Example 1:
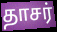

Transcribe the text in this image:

தாசர்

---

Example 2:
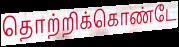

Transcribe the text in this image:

தொற்றிக்கொண்டே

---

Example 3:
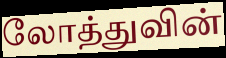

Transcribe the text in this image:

லோத்துவின்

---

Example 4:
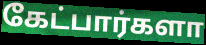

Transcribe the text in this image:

கேட்பார்களா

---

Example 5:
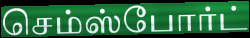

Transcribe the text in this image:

செம்ஸ்போர்ட்